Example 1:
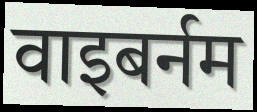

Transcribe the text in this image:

वाइबर्नम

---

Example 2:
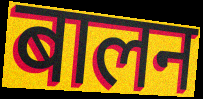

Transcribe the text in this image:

बालन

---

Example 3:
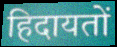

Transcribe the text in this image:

हिदायतों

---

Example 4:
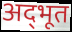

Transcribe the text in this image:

अद्भूत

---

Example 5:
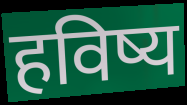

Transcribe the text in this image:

हविष्‍य